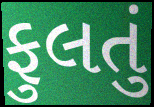
ફુલતું